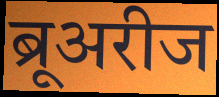
ब्रूअरीज